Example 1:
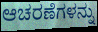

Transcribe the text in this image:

ಆಚರಣೆಗಳನ್ನು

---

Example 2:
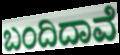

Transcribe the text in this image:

ಬಂದಿದಾವೆ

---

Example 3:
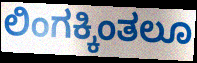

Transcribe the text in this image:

ಲಿಂಗಕ್ಕಿಂತಲೂ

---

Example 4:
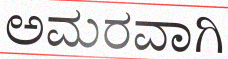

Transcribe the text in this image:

ಅಮರವಾಗಿ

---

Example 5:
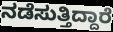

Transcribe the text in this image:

ನಡೆಸುತ್ತಿದ್ದಾರೆ